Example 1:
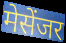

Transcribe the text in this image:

मेसेंजर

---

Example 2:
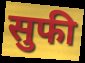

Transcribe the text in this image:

सुफी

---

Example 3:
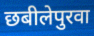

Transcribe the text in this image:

छबीलेपुरवा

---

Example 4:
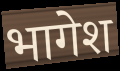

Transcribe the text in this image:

भागेश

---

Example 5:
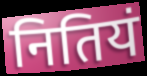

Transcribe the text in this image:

नितियं